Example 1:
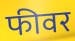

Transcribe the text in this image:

फीवर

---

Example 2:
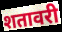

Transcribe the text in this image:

शतावरी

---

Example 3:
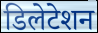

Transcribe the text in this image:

डिलेटेशन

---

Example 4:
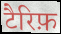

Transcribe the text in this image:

टैरिफ़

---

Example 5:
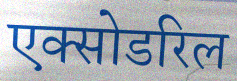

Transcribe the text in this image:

एक्सोडरिल